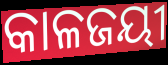
କାଳଜୟୀ